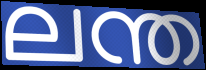
ലന്ത